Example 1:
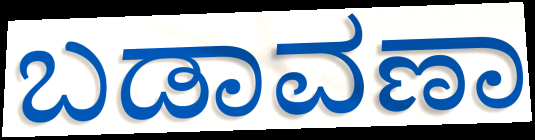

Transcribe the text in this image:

ಬಡಾವಣಾ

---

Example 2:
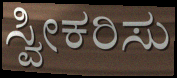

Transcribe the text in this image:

ಸ್ವೀಕರಿಸು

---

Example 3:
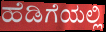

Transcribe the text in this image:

ಹೆಡಿಗೆಯಲ್ಲಿ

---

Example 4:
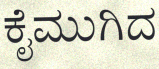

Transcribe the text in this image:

ಕೈಮುಗಿದ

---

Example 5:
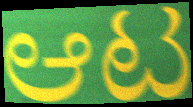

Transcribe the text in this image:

ಆಟ